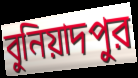
বুনিয়াদপুর